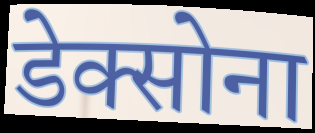
डेक्सोना